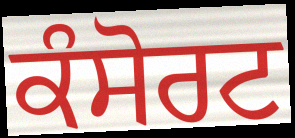
ਕੰਸੋਰਟ